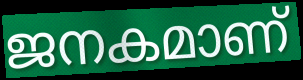
ജനകമാണ്